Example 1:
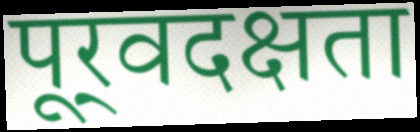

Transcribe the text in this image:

पूर्वदक्षता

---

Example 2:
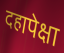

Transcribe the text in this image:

दहापेक्षा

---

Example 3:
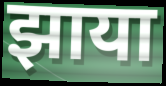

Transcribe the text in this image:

झाया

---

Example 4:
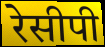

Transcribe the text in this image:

रेसीपी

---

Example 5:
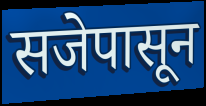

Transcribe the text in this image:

सजेपासून